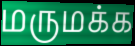
மருமக்க